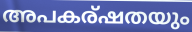
അപകര്ഷതയും